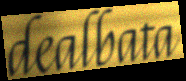
dealbata